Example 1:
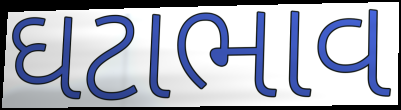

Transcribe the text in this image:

ઘટાભાવ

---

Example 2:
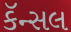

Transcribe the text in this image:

કૅન્સલ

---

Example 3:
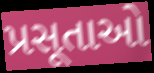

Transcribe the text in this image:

પ્રસૂતાઓ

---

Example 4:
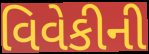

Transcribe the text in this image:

વિવેકીની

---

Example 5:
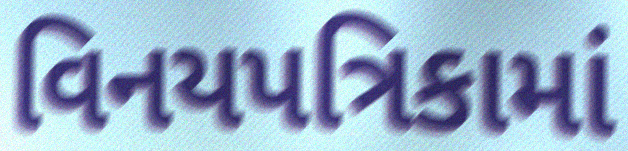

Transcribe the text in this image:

વિનયપત્રિકામાં